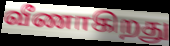
வீணாகிறது